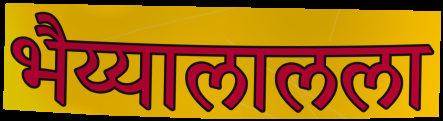
भैय्यालालला